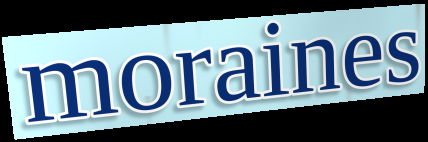
moraines